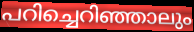
പറിച്ചെറിഞ്ഞാലും